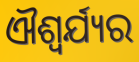
ଐଶ୍ୱର୍ଯ୍ୟର